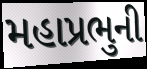
મહાપ્રભુની